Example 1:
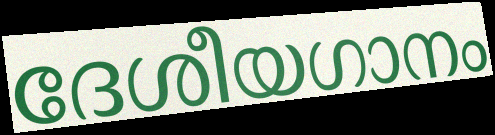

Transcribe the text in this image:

ദേശീയഗാനം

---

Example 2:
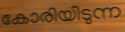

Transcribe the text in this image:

കോരിയിടുന്ന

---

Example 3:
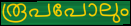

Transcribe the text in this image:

രൂപപോലും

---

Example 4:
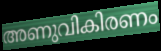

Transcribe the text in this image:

അണുവികിരണം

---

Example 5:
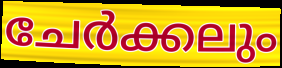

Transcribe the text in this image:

ചേർക്കലും